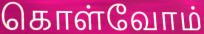
கொள்வோம்